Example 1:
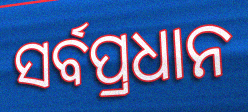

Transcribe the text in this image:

ସର୍ବପ୍ରଧାନ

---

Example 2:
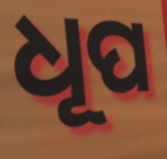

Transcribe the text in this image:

ଧୂପ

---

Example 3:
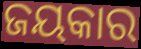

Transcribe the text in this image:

ଜୟକାର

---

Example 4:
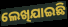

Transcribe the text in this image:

ଲେଖିଯାଇଛି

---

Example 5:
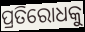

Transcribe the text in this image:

ପ୍ରତିରୋଧକୁ